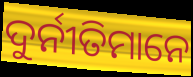
ଦୁର୍ନୀତିମାନେ